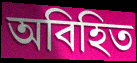
অবিহিত